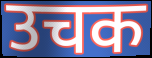
उचक